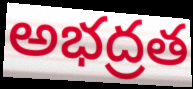
అభద్రత